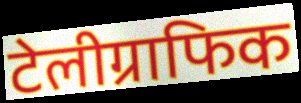
टेलीग्राफिक